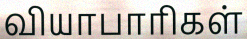
வியாபாரிகள்